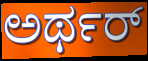
ಅರ್ಥರ್